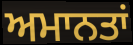
ਅਮਾਨਤਾਂ